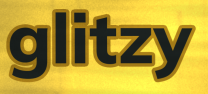
glitzy